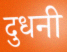
दुधनी